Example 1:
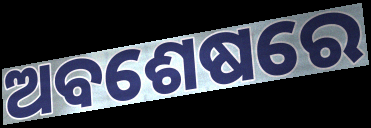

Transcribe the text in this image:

ଅବଶେଷରେ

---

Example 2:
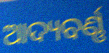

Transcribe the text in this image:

ଆଦ୍ୟବର୍ଣ୍ଣ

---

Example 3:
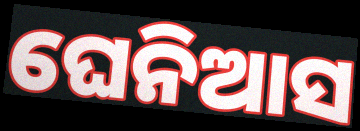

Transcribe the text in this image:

ଘେନିଆସ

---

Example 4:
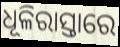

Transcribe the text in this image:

ଧୂଳିରାସ୍ତାରେ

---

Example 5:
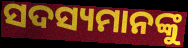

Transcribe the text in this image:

ସଦସ୍ୟମାନଙ୍କୁ